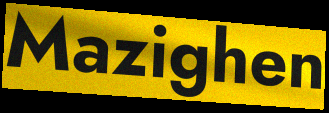
Mazighen